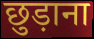
छुड़ाना